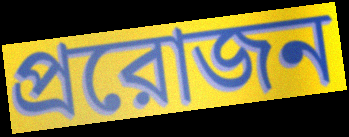
প্ররোজন